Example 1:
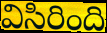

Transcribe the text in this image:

విసిరింది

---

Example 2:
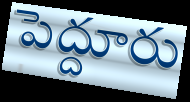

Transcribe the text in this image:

పెద్దూరు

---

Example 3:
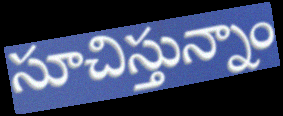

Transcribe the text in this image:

సూచిస్తున్నాం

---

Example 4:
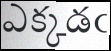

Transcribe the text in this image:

ఎక్కడఁ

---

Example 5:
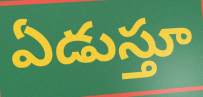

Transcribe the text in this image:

ఏడుస్తూ